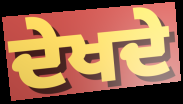
ਦੇਖਦੇ